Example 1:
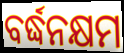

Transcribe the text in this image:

ବର୍ଦ୍ଧନକ୍ଷମ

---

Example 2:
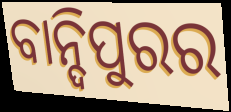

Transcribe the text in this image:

ବାନ୍ଦିପୁରର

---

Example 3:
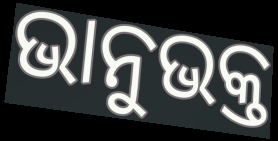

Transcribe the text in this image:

ଭାନୁଭକ୍ତ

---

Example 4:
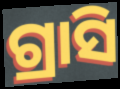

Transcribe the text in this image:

ଗ୍ରାସି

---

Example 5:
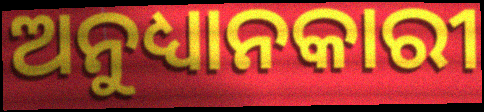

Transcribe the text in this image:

ଅନୁଧ୍ୟାନକାରୀ